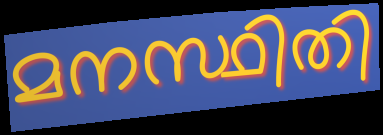
മനസ്ഥിതി